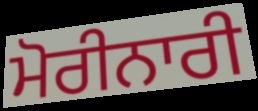
ਮੋਰੀਨਾਰੀ